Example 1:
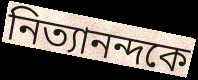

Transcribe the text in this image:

নিত্যানন্দকে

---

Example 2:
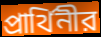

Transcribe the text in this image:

প্রার্থিনীর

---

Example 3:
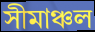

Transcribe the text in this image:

সীমাঞ্চল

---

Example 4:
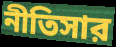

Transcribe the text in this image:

নীতিসার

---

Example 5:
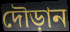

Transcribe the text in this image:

দৌড়ান